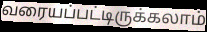
வரையப்பட்டிருக்கலாம்